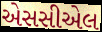
એસસીએલ